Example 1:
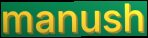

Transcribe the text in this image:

manush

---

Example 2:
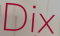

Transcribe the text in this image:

Dix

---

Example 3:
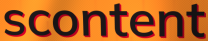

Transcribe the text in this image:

scontent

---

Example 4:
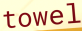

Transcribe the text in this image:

towel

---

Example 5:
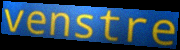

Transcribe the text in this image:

venstre